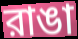
রাঙা